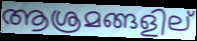
ആശ്രമങ്ങളില്